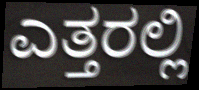
ಎತ್ತರಲ್ಲಿ